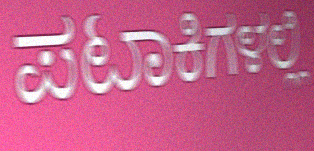
ಪಟಾಕಿಗಳಲ್ಲಿ